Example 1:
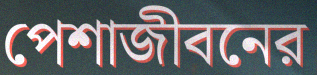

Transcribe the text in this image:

পেশাজীবনের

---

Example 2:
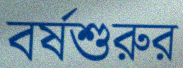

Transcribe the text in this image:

বর্ষশুরুর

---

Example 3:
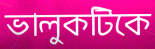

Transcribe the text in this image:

ভালুকটিকে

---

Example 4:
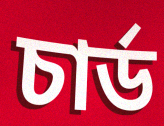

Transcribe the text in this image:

চার্ড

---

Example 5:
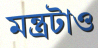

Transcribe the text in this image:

মন্ত্রটাও